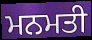
ਮਨਮਤੀ